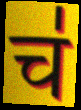
च॑